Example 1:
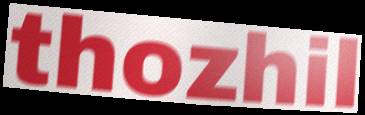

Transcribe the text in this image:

thozhil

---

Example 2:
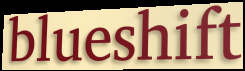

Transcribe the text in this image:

blueshift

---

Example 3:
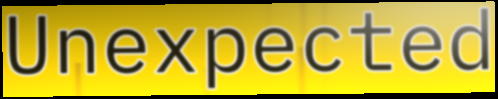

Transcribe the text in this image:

Unexpected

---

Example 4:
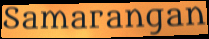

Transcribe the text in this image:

Samarangan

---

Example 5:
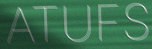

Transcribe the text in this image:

ATUFS